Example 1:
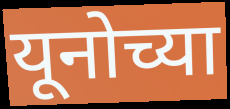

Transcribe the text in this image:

यूनोच्या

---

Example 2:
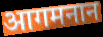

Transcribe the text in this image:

आगमनान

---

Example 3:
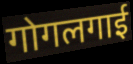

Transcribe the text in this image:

गोगलगाई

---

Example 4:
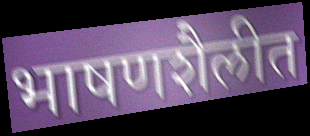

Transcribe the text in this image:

भाषणशैलीत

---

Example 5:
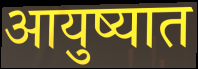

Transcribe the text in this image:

आयुष्यात